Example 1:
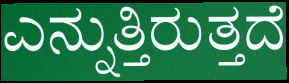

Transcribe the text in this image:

ಎನ್ನುತ್ತಿರುತ್ತದೆ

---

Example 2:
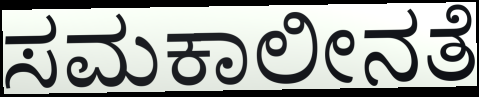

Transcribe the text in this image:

ಸಮಕಾಲೀನತೆ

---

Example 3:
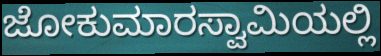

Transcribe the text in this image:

ಜೋಕುಮಾರಸ್ವಾಮಿಯಲ್ಲಿ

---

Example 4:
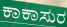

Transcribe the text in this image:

ಕಾಕಾಸುರ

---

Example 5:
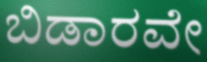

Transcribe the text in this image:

ಬಿಡಾರವೇ